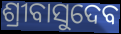
ଶ୍ରୀବାସୁଦେବ